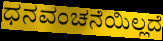
ಧನವಂಚನೆಯಿಲ್ಲದೆ